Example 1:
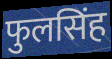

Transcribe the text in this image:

फुलसिंह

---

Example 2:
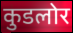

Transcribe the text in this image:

कुडलोर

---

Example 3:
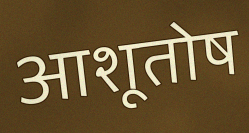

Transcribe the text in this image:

आशूतोष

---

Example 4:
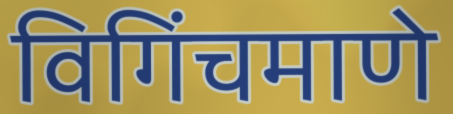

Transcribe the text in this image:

विगिंचमाणे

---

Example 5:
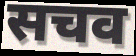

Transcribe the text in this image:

सचव